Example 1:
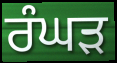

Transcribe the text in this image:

ਰੰਘੜ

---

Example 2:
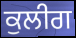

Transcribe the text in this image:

ਕੁਲੀਗ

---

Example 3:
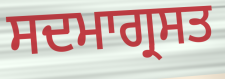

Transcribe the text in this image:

ਸਦਮਾਗ੍ਰਸਤ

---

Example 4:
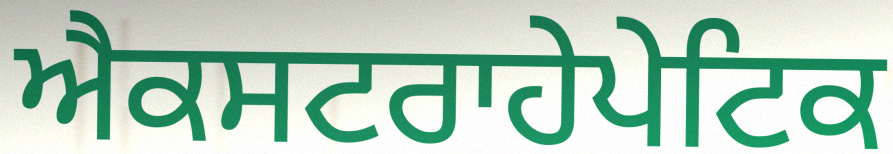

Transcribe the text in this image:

ਐਕਸਟਰਾਹੇਪੇਟਿਕ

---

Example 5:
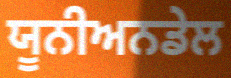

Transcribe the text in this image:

ਯੂਨੀਅਨਡੇਲ